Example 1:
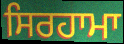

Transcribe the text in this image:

ਸਿਰਹਾਮਾ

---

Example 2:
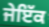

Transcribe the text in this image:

ਜੇਇੱਕ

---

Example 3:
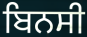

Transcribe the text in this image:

ਬਿਨਸੀ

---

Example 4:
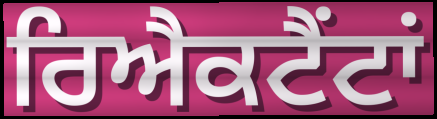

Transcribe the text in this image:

ਰਿਐਕਟੈਂਟਾਂ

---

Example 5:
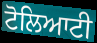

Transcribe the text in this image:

ਟੋਲਿਆਟੀ